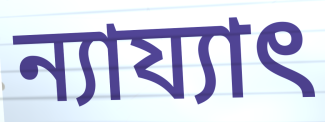
ন্যায্যাৎ